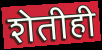
शेतीही